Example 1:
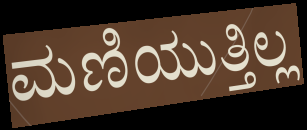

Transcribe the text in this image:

ಮಣಿಯುತ್ತಿಲ್ಲ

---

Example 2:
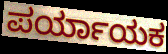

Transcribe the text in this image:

ಪರ್ಯಾಯಕ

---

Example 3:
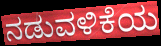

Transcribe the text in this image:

ನಡುವಳಿಕೆಯ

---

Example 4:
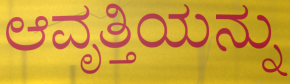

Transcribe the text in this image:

ಆವೃತ್ತಿಯನ್ನು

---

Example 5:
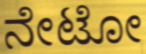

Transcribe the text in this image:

ನೇಟೋ